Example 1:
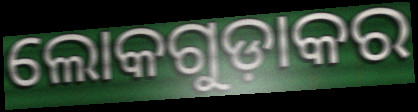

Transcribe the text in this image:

ଲୋକଗୁଡ଼ାକର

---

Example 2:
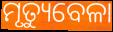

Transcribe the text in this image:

ମୃତ୍ୟୁବେଳା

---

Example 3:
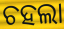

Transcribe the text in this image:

ଚହଲା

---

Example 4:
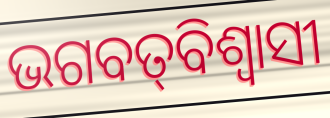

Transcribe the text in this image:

ଭଗବତ୍‌ବିଶ୍ଵାସୀ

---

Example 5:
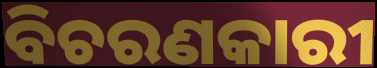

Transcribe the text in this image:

ବିଚରଣକାରୀ